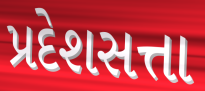
પ્રદેશસત્તા